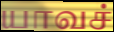
யாவச்